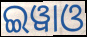
ଇୱାଓ